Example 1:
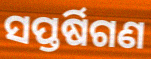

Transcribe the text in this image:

ସପ୍ତର୍ଷିଗଣ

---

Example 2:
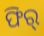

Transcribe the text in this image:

ଫିର୍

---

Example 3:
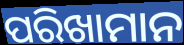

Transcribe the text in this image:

ପରିଖାମାନ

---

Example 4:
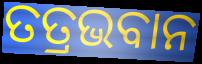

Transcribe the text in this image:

ତତ୍ରଭବାନ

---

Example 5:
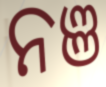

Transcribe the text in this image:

ନଞ